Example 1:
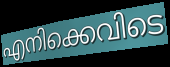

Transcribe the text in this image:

എനിക്കെവിടെ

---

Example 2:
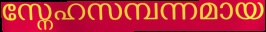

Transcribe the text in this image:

സ്നേഹസമ്പന്നമായ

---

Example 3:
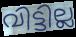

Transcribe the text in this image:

വിട്ടില്ല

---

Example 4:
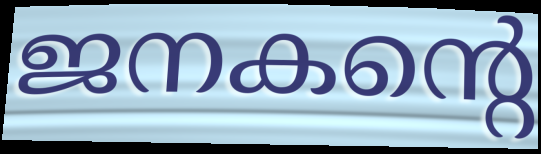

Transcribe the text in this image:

ജനകന്റെ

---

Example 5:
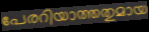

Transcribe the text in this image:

പേരറിയാത്തതുമായ